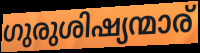
ഗുരുശിഷ്യന്മാര്